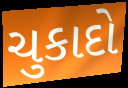
ચુકાદો